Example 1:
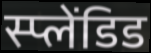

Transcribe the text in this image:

स्प्लेंडिड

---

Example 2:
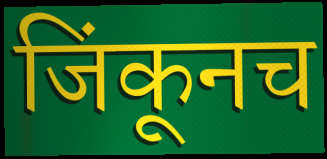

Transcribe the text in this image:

जिंकूनच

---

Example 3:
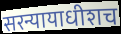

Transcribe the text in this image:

सरन्यायाधीशच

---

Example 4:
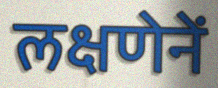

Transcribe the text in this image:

लक्षणेनें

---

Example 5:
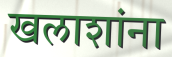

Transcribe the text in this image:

खलाशांना